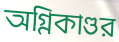
অগ্নিকাণ্ডর